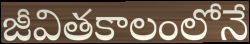
జీవితకాలంలోనే